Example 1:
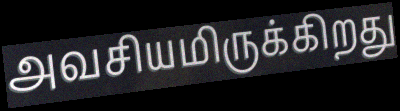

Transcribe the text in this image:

அவசியமிருக்கிறது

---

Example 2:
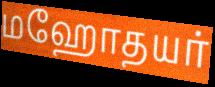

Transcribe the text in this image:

மஹோதயர்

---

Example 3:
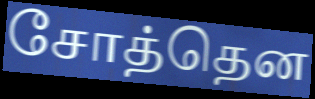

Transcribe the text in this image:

சோத்தென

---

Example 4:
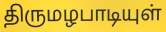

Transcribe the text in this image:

திருமழபாடியுள்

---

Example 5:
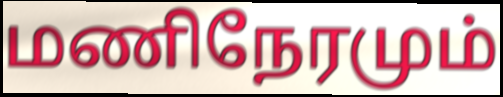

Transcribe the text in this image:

மணிநேரமும்